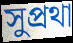
সুপ্রথা